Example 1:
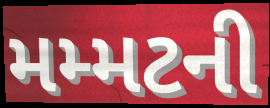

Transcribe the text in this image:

મમ્મટની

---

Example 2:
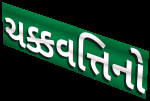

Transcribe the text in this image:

ચક્કવત્તિનો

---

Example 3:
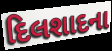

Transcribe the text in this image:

દિલશાદના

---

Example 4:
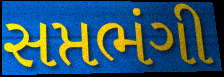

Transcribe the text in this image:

સપ્તભંગી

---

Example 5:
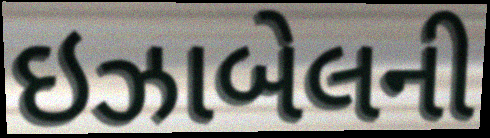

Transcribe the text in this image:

ઇઝાબેલની